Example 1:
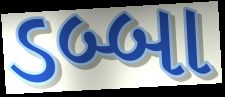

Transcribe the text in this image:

ડબ્બા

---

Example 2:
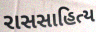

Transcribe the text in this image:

રાસસાહિત્ય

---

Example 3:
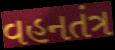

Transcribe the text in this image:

વહનતંત્ર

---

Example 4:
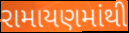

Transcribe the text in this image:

રામાયણમાંથી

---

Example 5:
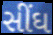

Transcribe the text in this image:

સીંઘ